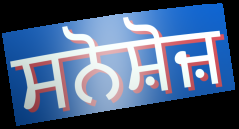
ਸਨੋਸ਼ੋਜ਼